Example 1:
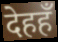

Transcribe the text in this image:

देहहँ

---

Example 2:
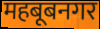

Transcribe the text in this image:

महबूबनगर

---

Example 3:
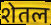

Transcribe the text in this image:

शेतल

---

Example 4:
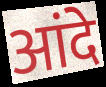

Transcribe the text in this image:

आंदे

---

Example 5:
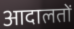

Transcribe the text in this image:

आदालतों